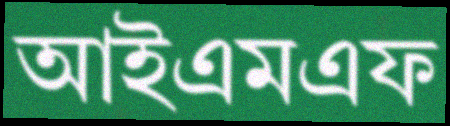
আইএমএফ